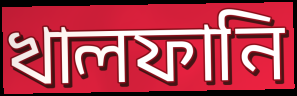
খালফানি